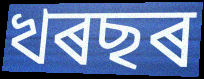
খৰছৰ